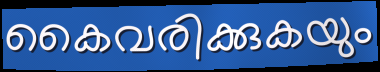
കൈവരിക്കുകയും